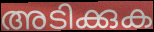
അടിക്കുക